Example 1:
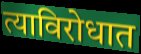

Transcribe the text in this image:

त्याविरोधात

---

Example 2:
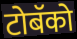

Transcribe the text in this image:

टोबॅको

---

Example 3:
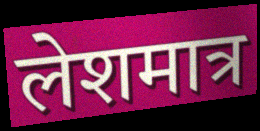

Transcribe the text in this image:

लेशमात्र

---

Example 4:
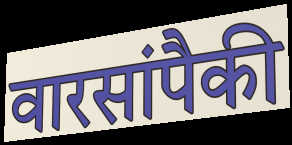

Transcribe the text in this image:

वारसांपैकी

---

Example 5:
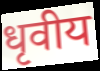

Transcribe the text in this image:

धृवीय